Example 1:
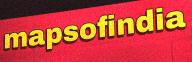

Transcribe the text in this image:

mapsofindia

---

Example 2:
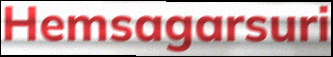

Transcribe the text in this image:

Hemsagarsuri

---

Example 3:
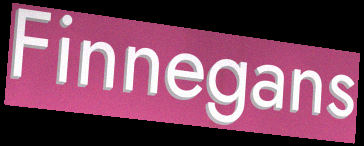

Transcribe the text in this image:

Finnegans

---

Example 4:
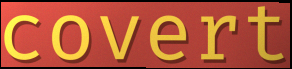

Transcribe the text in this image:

covert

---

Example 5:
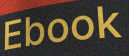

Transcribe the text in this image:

Ebook